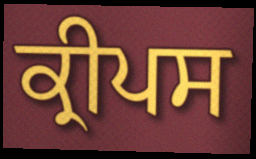
ਕ੍ਰੀਪਸ